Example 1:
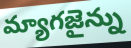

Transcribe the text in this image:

మ్యాగజైన్ను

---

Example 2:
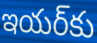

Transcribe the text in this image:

ఇయర్‌కు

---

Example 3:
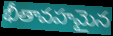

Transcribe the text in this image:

భీతావహమైన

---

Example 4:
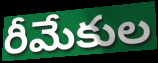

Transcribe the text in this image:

రీమేకుల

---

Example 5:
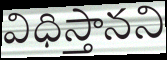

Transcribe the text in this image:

విధిస్తానని